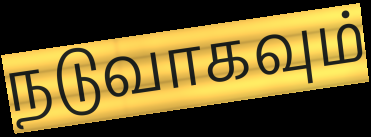
நடுவாகவும்